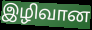
இழிவான